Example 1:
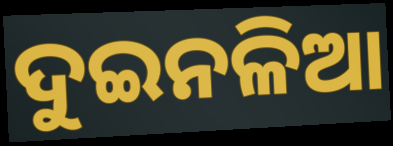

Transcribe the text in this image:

ଦୁଇନଳିଆ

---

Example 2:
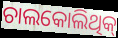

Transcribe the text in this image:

ଚାଲକୋଲିଥିକ୍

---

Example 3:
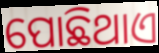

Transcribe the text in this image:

ପୋଛିଥାଏ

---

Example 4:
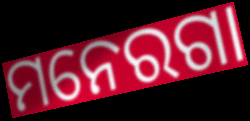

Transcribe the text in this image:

ମନେରଗା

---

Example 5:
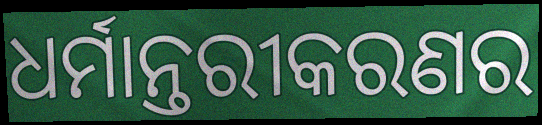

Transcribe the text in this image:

ଧର୍ମାନ୍ତରୀକରଣର